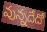
వున్నదేదో